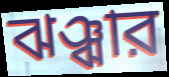
ঝঞ্ঝার